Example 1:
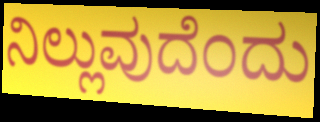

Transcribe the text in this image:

ನಿಲ್ಲುವುದೆಂದು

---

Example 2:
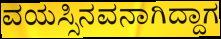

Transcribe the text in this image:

ವಯಸ್ಸಿನವನಾಗಿದ್ದಾಗ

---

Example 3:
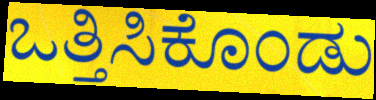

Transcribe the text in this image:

ಒತ್ತಿಸಿಕೊಂಡು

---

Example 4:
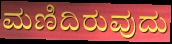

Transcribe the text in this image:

ಮಣಿದಿರುವುದು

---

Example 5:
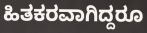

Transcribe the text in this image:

ಹಿತಕರವಾಗಿದ್ದರೂ